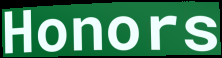
Honors